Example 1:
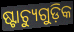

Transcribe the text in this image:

ଷ୍ଟାଚ୍ୟୁଗୁଡ଼ିକ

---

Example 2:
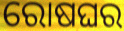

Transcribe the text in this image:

ରୋଷଘର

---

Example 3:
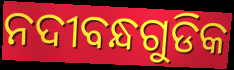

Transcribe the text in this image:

ନଦୀବନ୍ଧଗୁଡିକ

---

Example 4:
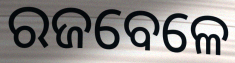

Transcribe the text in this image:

ରଜବେଳେ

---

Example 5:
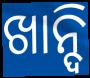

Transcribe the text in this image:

ଖାନ୍ଦି